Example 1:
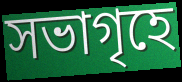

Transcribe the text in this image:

সভাগৃহে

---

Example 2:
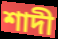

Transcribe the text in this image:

শাদী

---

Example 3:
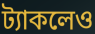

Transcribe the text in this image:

ট্যাকলেও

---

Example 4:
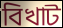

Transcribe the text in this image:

বিখাট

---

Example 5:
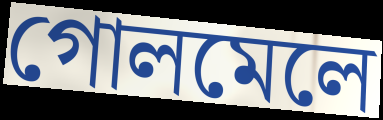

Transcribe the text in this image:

গোলমেলে